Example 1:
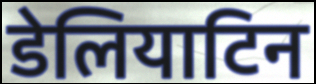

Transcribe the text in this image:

डेलियाटिन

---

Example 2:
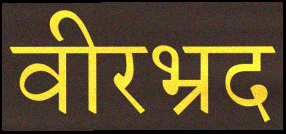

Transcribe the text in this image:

वीरभ्रद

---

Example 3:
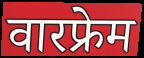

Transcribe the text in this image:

वारफ्रेम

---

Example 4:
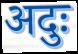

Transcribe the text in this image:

अदुः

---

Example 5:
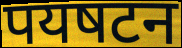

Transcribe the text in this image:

पयषटन